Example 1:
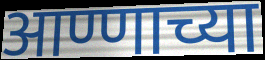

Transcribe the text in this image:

आण्णाच्या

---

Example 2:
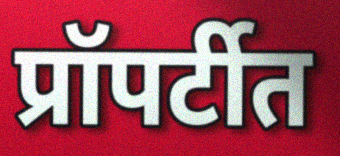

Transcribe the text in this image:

प्रॉपर्टीत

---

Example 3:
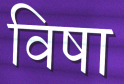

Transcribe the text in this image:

विषा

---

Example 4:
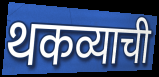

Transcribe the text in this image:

थकव्याची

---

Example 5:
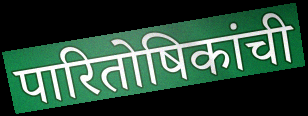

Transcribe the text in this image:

पारितोषिकांची